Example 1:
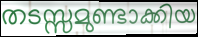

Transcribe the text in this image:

തടസ്സമുണ്ടാക്കിയ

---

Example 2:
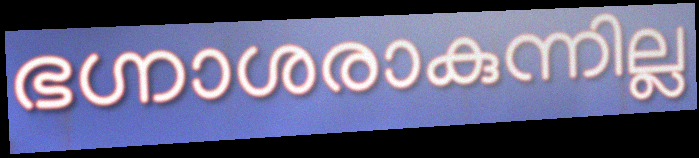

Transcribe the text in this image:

ഭഗ്നാശരാകുന്നില്ല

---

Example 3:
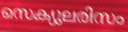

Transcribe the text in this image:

സെക്യുലരിസം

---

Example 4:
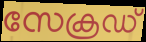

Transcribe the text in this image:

സേക്രഡ്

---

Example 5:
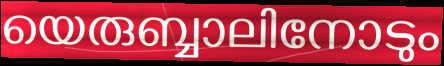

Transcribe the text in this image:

യെരുബ്ബാലിനോടും